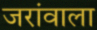
जरांवाला